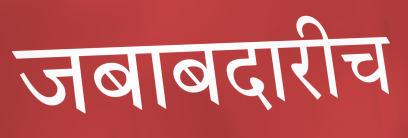
जबाबदारीच